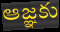
ఆజ్ఞకు